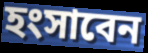
হংসাবেন